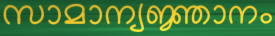
സാമാന്യജ്ഞാനം